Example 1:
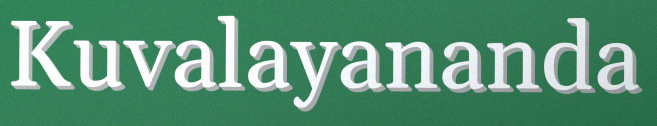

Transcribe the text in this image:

Kuvalayananda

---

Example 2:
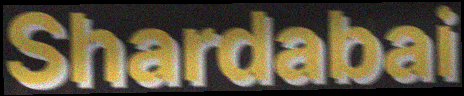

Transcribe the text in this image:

Shardabai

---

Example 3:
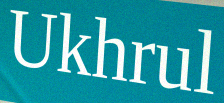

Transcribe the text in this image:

Ukhrul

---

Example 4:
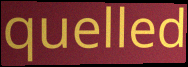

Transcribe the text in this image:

quelled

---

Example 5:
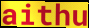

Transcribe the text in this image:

aithu